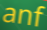
anf